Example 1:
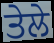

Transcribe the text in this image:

ਤੇਲੇ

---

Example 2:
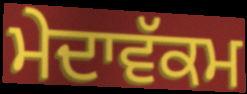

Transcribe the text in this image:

ਮੇਦਾਵੱਕਮ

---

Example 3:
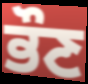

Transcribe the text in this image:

ਭੌਣ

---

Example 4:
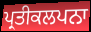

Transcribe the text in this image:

ਪ੍ਰਤੀਕਲਪਨਾ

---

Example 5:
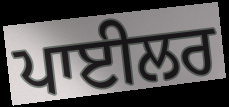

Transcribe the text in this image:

ਪਾਈਲਰ